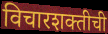
विचारशक्तीची